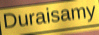
Duraisamy